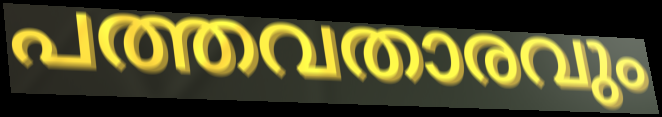
പത്തവതാരവും